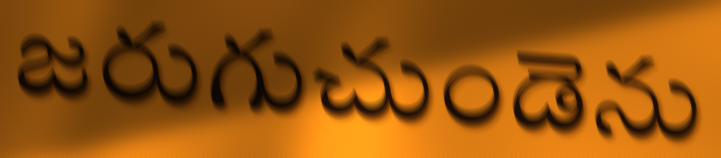
జరుగుచుండెను